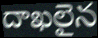
దాఖలైన